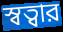
স্বত্বার